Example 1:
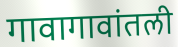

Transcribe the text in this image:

गावागावांतली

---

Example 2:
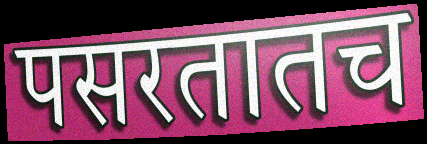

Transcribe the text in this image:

पसरतातच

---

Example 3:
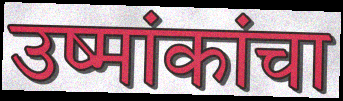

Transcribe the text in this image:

उष्मांकांचा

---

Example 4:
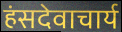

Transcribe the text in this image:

हंसदेवाचार्य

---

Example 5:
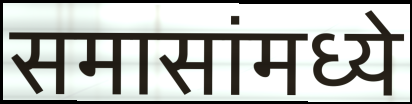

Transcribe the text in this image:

समासांमध्ये